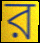
ব়